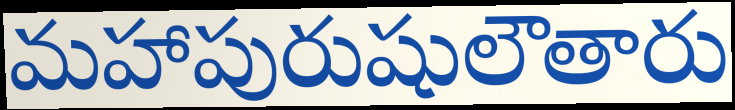
మహాపురుషులౌతారు